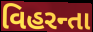
વિહરન્તા